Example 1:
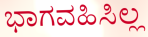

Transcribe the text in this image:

ಭಾಗವಹಿಸಿಲ್ಲ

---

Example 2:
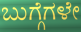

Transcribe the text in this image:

ಬುಗ್ಗೆಗಳೇ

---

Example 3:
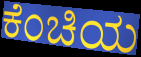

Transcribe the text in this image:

ಕೆಂಚಿಯ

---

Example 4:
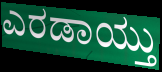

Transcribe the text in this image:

ಎರಡಾಯ್ತು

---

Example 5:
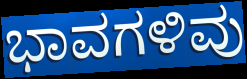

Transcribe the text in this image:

ಭಾವಗಳಿವು